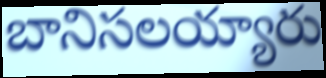
బానిసలయ్యారు